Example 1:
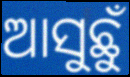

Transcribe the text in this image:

ଆସୁଛୁଁ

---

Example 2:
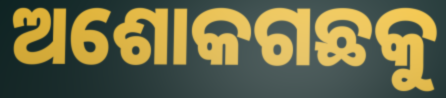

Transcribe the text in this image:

ଅଶୋକଗଛକୁ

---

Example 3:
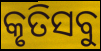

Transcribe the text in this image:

କୃତିସବୁ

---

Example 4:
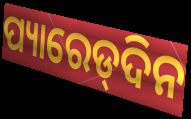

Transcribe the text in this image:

ପ୍ୟାରେଡ୍‌ଦିନ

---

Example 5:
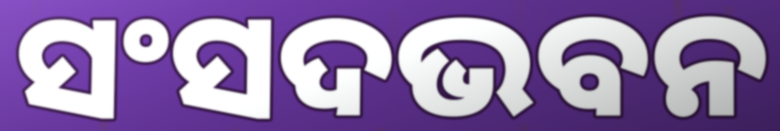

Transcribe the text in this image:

ସଂସଦଭବନ